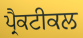
ਪ੍ਰੈਕਟੀਕਲ